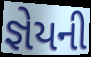
જ્ઞેયની